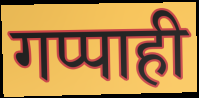
गप्पाही